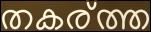
തകര്ത്ത